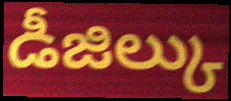
డీజిల్కు